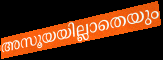
അസൂയയില്ലാതെയും